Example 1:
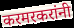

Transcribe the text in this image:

करमरकरांनी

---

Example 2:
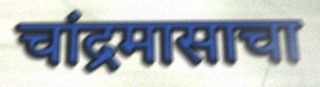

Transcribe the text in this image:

चांद्रमासाचा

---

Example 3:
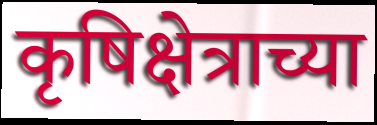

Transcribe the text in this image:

कृषिक्षेत्राच्या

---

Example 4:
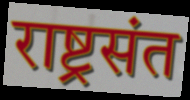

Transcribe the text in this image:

राष्ट्रसंत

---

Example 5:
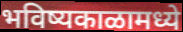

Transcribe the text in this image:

भविष्यकाळामध्ये